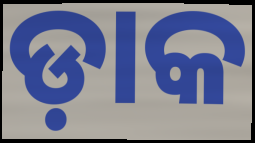
ଡ଼ାକ